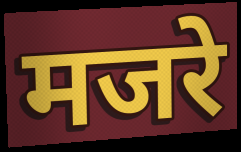
मजरे